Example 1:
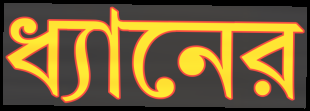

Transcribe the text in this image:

ধ্যানের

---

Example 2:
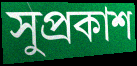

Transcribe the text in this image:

সুপ্রকাশ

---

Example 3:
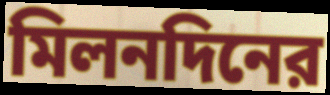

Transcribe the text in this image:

মিলনদিনের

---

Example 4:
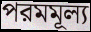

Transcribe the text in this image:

পরমমূল্য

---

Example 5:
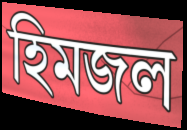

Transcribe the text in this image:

হিমজল